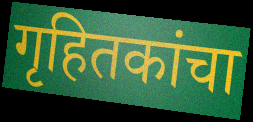
गृहितकांचा